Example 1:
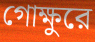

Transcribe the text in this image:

গোক্ষুরে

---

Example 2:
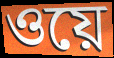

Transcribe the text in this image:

ওয়ে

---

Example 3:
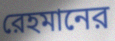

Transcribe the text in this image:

রেহমানের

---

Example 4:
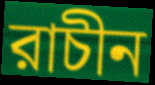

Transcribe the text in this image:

রাচীন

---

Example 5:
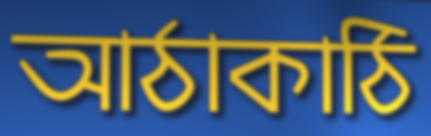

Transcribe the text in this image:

আঠাকাঠি